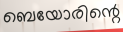
ബെയോരിന്റെ